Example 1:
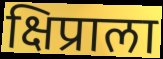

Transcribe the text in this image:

क्षिप्राला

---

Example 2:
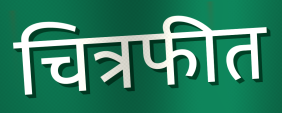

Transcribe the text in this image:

चित्रफीत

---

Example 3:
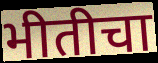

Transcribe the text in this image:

भीतीचा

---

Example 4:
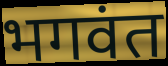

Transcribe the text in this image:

भगवंत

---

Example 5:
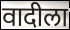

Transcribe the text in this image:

वादीला